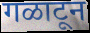
गळाटून